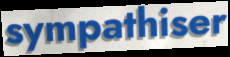
sympathiser